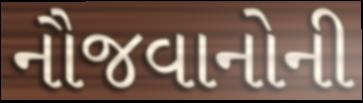
નૌજવાનોની